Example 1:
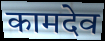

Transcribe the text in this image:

कामदेव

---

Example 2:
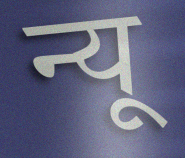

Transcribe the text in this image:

न्यू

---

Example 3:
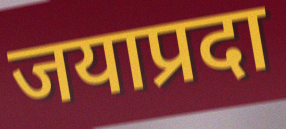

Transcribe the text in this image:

जयाप्रदा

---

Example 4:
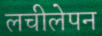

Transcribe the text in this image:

लचीलेपन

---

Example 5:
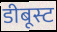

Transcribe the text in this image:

डीबूस्ट